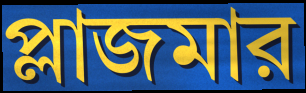
প্লাজমার